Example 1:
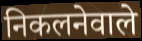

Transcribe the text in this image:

निकलनेवाले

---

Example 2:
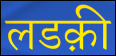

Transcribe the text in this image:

लडक़ी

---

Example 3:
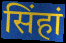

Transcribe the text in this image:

सिंहां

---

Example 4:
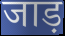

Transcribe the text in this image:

जाड़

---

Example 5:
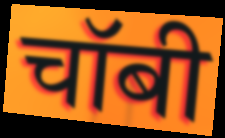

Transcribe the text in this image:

चॉबी